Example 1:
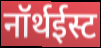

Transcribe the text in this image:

नॉर्थईस्ट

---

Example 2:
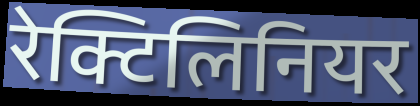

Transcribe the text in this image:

रेक्टिलिनियर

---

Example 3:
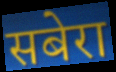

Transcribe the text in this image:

सबेरा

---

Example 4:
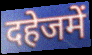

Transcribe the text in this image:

दहेजमें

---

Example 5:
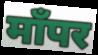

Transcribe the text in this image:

माँपर